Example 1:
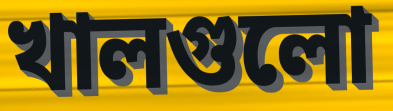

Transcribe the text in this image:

খালগুলো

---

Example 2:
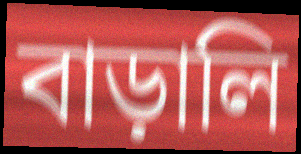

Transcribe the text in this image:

বাড়ালি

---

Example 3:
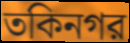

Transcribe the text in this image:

তকিনগর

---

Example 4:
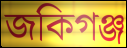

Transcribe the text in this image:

জকিগঞ্জ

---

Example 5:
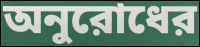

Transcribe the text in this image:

অনুরোধের